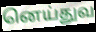
னெய்துவ